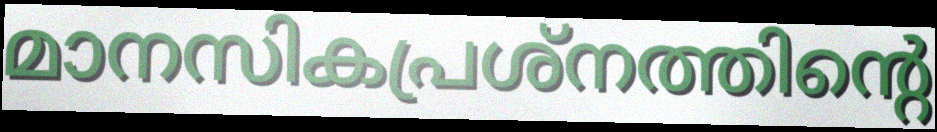
മാനസികപ്രശ്നത്തിന്റെ